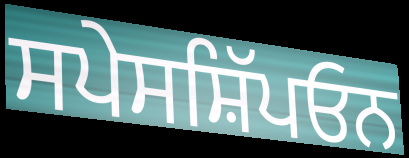
ਸਪੇਸਸ਼ਿੱਪਓਨ